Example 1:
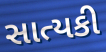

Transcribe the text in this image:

સાત્યકી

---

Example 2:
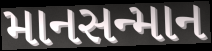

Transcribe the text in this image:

માનસન્માન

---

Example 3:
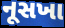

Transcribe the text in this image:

નૂસખા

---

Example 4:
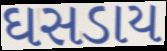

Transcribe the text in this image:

ઘસડાય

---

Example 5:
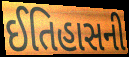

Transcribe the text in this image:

ઈતિહાસની